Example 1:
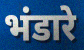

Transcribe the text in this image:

भंडारे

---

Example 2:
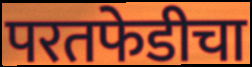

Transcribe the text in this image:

परतफेडीचा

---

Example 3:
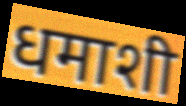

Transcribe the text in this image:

धमाशी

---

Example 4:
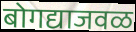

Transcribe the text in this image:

बोगद्याजवळ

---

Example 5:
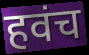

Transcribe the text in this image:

हवंच